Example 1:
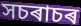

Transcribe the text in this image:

সচৰাচৰ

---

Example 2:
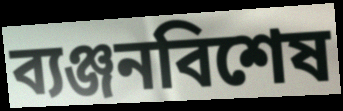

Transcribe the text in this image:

ব্যঞ্জনবিশেষ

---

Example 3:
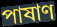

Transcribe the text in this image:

পাষাণ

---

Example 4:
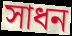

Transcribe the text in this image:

সাধন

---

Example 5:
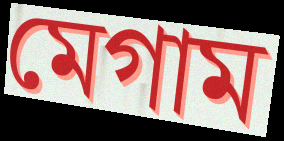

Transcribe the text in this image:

মেগাম